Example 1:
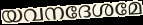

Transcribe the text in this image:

യവനദേശമേ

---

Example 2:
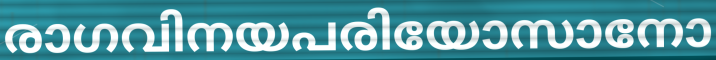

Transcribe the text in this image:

രാഗവിനയപരിയോസാനോ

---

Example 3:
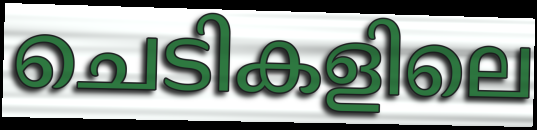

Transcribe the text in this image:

ചെടികളിലെ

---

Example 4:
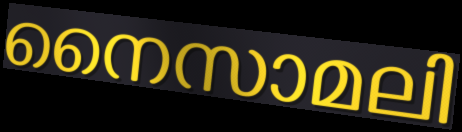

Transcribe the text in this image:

നൈസാമലി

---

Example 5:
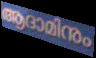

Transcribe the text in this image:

ആദാമിനും